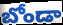
బోండా